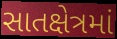
સાતક્ષેત્રમાં